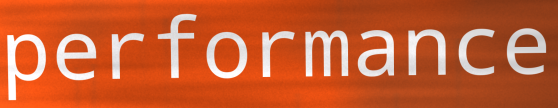
performance